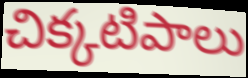
చిక్కటిపాలు